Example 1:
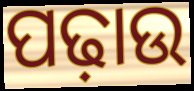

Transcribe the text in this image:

ପଢ଼ାଉ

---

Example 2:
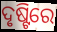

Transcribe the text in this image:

ଦୃଷ୍ଟିରେ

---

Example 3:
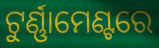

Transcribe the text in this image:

ଟୁର୍ଣ୍ଣାମେଣ୍ଟରେ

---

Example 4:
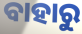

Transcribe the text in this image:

ବାହାରୁ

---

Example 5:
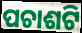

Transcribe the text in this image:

ପଚାଶଟି